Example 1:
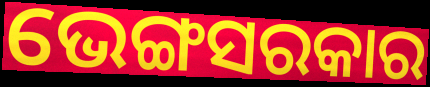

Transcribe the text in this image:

ଭେଙ୍ଗସରକାର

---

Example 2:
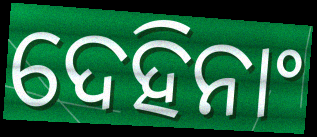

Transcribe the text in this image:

ଦେହିନାଂ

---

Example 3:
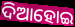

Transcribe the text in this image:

ଦିଆହୋଇ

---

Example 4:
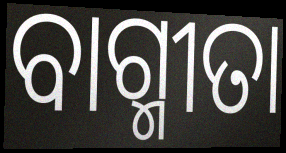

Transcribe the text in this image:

ବାଗ୍ମୀତା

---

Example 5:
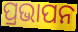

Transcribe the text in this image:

ପ୍ରଭାପନ